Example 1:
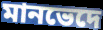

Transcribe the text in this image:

মানভেদে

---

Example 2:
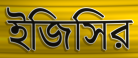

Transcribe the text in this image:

ইজিসির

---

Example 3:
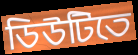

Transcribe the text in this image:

ডিউটিতে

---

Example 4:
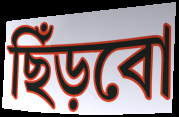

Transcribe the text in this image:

ছিঁড়বো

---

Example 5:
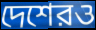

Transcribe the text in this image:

দেশেরও